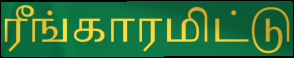
ரீங்காரமிட்டு